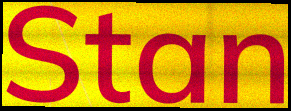
Stan